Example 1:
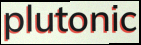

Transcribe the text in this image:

plutonic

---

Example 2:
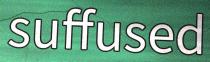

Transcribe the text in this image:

suffused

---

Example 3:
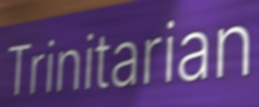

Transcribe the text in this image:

Trinitarian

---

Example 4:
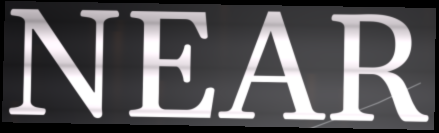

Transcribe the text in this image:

NEAR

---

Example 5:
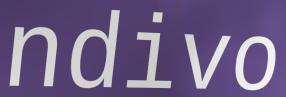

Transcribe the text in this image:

ndivo